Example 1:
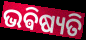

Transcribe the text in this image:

ଭଵିଷ୍ୟତି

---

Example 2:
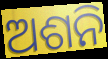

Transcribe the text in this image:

ଅଶନି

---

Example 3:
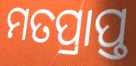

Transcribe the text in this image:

ମତପ୍ରାପ୍ତ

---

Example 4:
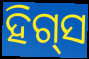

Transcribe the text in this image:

ହିଗ୍‌ସ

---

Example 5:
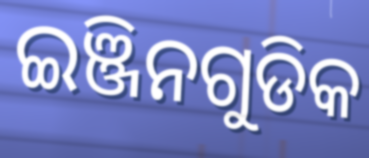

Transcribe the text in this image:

ଇଞ୍ଜିନଗୁଡିକ